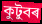
কুটুবৰ